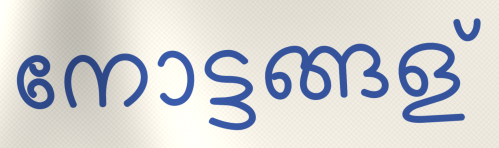
നോട്ടങ്ങള്